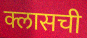
क्लासची